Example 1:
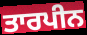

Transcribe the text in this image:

ਤਾਰਪੀਨ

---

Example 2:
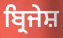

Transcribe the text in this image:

ਬ੍ਰਿਜੇਸ਼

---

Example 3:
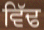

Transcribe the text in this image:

ਵਿੱਢ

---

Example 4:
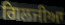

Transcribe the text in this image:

ਗਿਲਜੀਆ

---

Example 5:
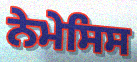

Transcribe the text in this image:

ਨੇਮੇਸਿਸ